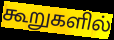
கூறுகளில்